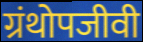
ग्रंथोपजीवी